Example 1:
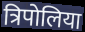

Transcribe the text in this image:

त्रिपोलिया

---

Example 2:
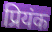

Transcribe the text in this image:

प्रियंक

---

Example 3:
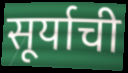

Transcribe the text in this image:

सूर्याची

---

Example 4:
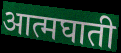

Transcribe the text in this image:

आत्मघाती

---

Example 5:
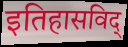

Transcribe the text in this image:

इतिहासविद्